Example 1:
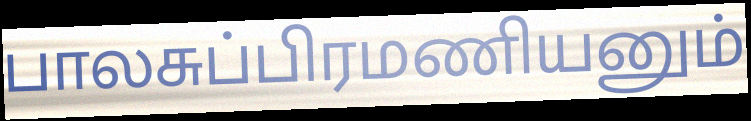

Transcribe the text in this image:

பாலசுப்பிரமணியனும்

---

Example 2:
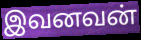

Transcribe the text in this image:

இவனவன்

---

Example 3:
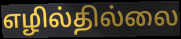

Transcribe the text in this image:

எழில்தில்லை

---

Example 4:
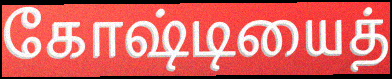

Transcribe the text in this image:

கோஷ்டியைத்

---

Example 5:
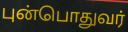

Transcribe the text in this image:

புன்பொதுவர்